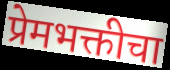
प्रेमभक्तीचा